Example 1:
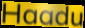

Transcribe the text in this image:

Haadu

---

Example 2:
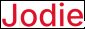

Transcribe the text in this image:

Jodie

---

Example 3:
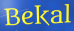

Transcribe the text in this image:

Bekal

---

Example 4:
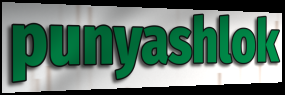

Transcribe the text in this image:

punyashlok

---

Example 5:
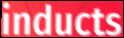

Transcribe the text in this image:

inducts